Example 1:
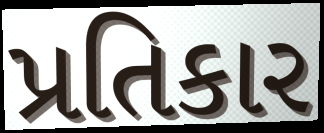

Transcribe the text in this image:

પ્રતિકાર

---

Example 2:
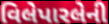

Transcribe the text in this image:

વિલેપારલેની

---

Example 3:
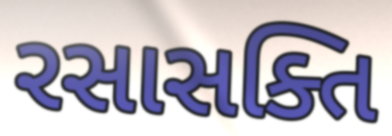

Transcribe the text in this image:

રસાસક્તિ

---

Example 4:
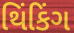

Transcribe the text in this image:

થિંકિંગ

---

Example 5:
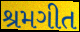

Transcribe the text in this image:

શ્રમગીત